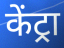
केंट्रा